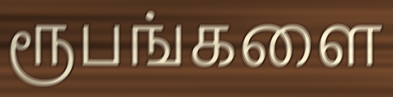
ரூபங்களை